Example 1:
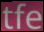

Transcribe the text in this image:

tfe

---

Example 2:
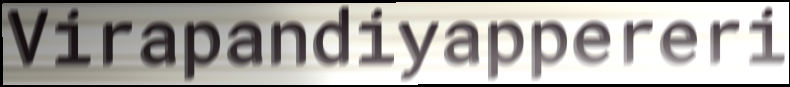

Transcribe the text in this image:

Virapandiyappereri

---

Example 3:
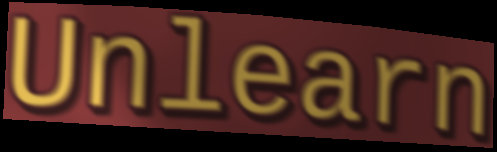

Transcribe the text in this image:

Unlearn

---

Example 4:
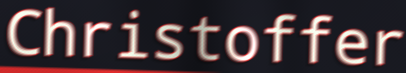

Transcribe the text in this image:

Christoffer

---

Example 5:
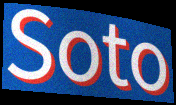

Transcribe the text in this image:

Soto